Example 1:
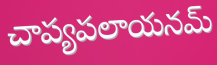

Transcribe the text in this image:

చాప్యపలాయనమ్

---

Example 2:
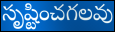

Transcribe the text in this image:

సృష్టించగలవు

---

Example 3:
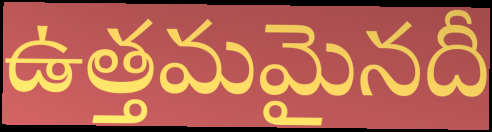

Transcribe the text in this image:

ఉత్తమమైనదీ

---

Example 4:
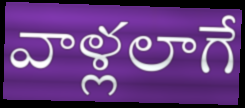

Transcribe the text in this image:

వాళ్లలాగే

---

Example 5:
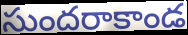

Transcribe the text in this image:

సుందరాకాండ